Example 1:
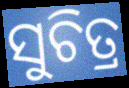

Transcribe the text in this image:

ସୁଚିତ୍ର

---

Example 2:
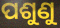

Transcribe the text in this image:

ପଶୁଣୁ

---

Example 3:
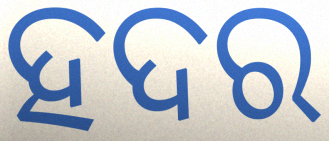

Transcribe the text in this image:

ହଦର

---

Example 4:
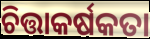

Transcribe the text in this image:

ଚିତ୍ତାକର୍ଷକତା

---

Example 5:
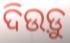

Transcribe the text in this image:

ଦିଉଡ଼ୁ